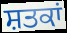
ਸ਼ਤਕਾਂ